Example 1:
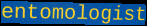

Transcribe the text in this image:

entomologist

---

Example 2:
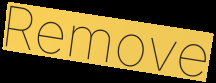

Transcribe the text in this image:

Remove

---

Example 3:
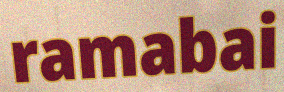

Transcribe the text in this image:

ramabai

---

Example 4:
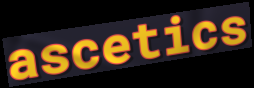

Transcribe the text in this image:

ascetics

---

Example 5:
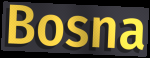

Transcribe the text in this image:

Bosna